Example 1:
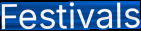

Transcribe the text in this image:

Festivals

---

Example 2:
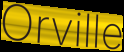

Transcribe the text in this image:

Orville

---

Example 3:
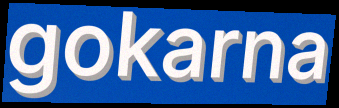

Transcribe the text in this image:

gokarna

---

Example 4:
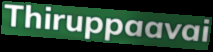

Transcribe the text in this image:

Thiruppaavai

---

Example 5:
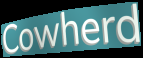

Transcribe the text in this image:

Cowherd